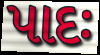
પાદઃ